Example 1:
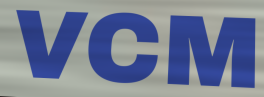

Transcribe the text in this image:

VCM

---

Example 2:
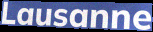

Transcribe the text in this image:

Lausanne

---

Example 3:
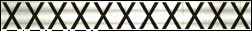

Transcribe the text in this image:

XXXXXXXXXXX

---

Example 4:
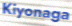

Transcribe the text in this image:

Kiyonaga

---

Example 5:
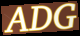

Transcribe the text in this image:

ADG